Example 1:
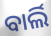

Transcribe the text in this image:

ବାର୍ଲି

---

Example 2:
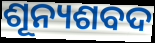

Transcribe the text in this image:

ଶୂନ୍ୟଶବଦ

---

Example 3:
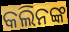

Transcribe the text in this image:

କଲିନଙ୍କ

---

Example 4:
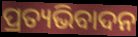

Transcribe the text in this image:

ପ୍ରତ୍ୟଭିବାଦନ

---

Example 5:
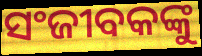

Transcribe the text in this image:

ସଂଜୀବକଙ୍କୁ